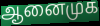
ஆனைமுக